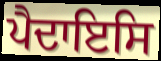
ਪੈਦਾਇਸਿ